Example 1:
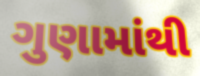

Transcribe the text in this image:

ગુણામાંથી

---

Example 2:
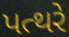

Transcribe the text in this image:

પત્થરે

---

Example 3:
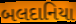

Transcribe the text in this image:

બલદાનિયા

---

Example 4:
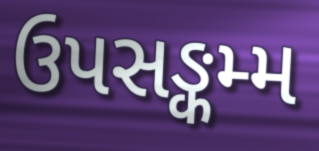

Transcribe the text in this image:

ઉપસઙ્કમ્મ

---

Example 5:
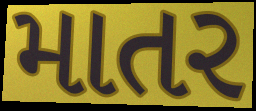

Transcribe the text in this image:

માતર